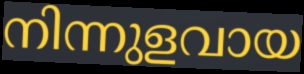
നിന്നുളവായ